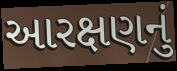
આરક્ષણનું